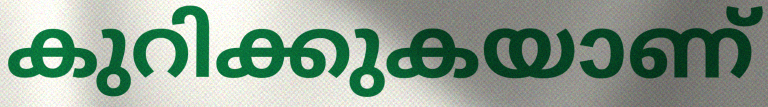
കുറിക്കുകയാണ്